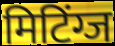
मिटिंग्ज